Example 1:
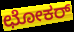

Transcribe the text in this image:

ಛೋಕರ್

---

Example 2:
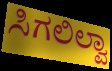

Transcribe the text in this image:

ಸಿಗಲಿಲ್ವಾ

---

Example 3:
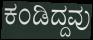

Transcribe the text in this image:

ಕಂಡಿದ್ದವು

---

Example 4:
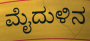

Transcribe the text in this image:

ಮೈದುಳಿನ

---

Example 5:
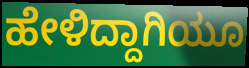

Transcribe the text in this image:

ಹೇಳಿದ್ದಾಗಿಯೂ